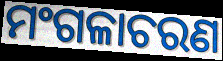
ମଂଗଳାଚରଣ